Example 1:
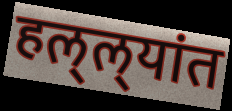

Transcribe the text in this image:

हल्ल्यांत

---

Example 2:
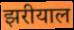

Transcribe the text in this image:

झरीयाल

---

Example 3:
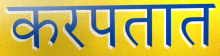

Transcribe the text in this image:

करपतात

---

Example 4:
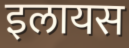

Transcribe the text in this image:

इलायस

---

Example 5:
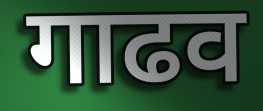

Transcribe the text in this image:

गाढव